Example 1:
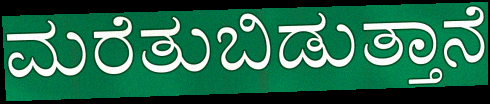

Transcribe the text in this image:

ಮರೆತುಬಿಡುತ್ತಾನೆ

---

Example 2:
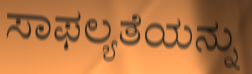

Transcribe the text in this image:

ಸಾಫಲ್ಯತೆಯನ್ನು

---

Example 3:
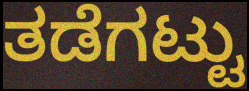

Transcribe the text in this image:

ತಡೆಗಟ್ಟು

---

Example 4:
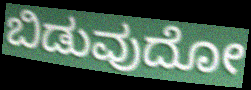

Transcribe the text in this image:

ಬಿಡುವುದೋ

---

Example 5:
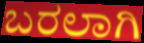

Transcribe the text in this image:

ಬರಲಾಗಿ